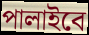
পালাইবে